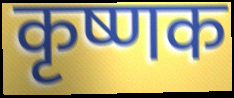
कृष्णक